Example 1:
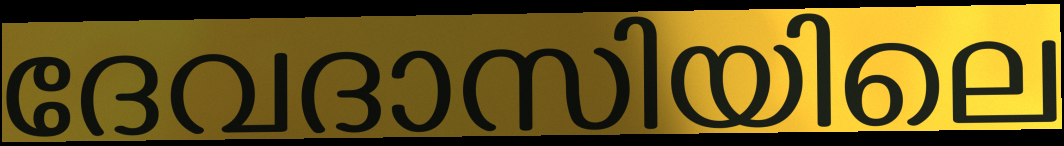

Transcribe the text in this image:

ദേവദാസിയിലെ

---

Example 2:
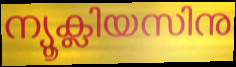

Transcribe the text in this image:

ന്യൂക്ലിയസിനു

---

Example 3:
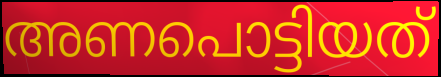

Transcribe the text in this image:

അണപൊട്ടിയത്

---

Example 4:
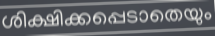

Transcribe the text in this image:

ശിക്ഷിക്കപ്പെടാതെയും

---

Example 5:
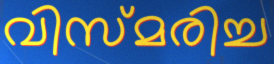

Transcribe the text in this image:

വിസ്മരിച്ച